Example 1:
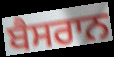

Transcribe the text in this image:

ਬੈਸਰਾਨ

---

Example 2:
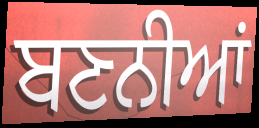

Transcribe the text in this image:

ਬਣਨੀਆਂ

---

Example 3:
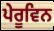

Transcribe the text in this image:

ਪੇਰੂਵਿਨ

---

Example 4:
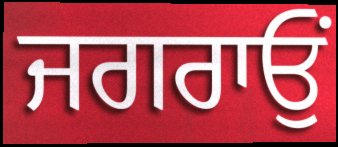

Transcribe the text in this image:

ਜਗਰਾਓੁਂ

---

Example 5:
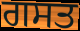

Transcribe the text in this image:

ਗਸਤ